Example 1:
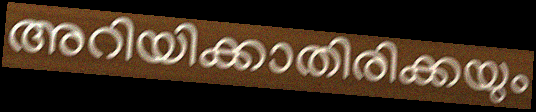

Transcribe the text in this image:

അറിയിക്കാതിരിക്കയും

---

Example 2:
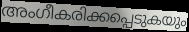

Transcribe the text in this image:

അംഗീകരിക്കപ്പെടുകയും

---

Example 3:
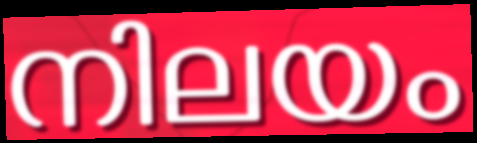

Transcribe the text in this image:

നിലയം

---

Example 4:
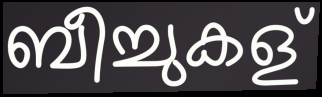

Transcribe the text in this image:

ബീച്ചുകള്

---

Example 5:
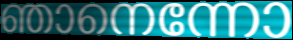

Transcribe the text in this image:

ഞാനെന്നോ